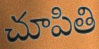
చూపితి